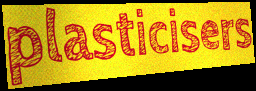
plasticisers